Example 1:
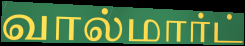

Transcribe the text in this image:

வால்மார்ட்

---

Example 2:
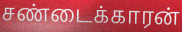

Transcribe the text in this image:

சண்டைக்காரன்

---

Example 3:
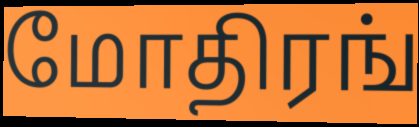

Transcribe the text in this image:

மோதிரங்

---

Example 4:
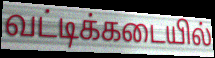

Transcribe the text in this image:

வட்டிக்கடையில்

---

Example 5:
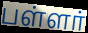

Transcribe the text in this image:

பள்ளர்